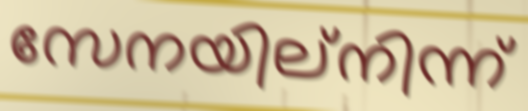
സേനയില്നിന്ന്